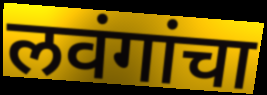
लवंगांचा